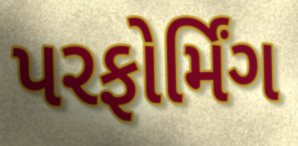
પરફોર્મિંગ